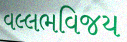
વલ્લભવિજય